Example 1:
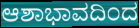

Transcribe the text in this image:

ಆಶಾಭಾವದಿಂದ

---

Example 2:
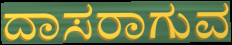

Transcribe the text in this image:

ದಾಸರಾಗುವ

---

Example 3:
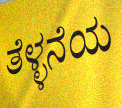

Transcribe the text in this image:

ತೆಳ್ಳನೆಯ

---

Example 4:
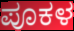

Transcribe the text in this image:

ಪೂಕಳ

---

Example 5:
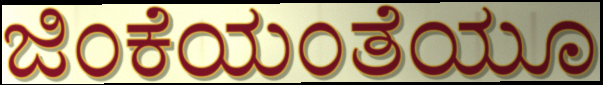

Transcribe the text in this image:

ಜಿಂಕೆಯಂತೆಯೂ